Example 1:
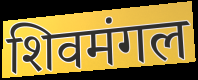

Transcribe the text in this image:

शिवमंगल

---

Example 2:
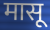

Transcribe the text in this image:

मासू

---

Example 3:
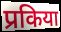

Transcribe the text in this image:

प्रकिया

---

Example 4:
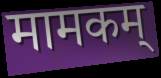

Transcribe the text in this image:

मामकम्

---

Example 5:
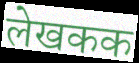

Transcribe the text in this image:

लेखकक